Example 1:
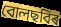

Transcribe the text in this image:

বোলছবিৰ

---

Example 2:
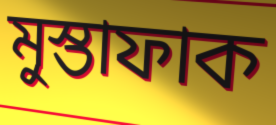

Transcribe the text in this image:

মুস্তাফাক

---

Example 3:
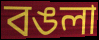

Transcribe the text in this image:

বঙলা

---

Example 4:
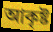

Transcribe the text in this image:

আকৃষ্ট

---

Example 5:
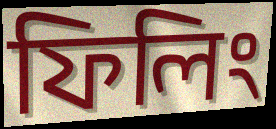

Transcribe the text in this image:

ফিলিং